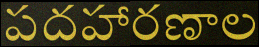
పదహారణాల